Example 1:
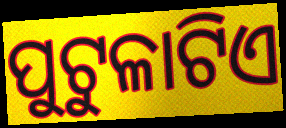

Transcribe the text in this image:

ପୁଟୁଳାଟିଏ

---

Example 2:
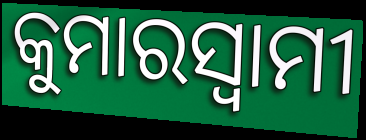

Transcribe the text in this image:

କୁମାରସ୍ୱାମୀ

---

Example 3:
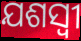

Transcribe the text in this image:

ଯଶସ୍ବୀ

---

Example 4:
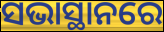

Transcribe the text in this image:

ସଭାସ୍ଥାନରେ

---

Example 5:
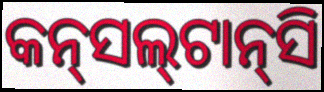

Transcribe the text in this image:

କନ୍‌ସଲ୍‌ଟାନ୍‌ସି